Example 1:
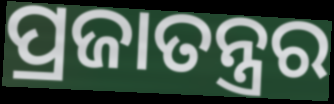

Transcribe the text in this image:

ପ୍ରଜାତନ୍ତ୍ରର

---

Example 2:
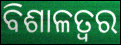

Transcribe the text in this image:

ବିଶାଳତ୍ୱର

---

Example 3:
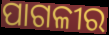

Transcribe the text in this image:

ପାଗଳୀର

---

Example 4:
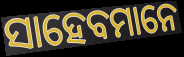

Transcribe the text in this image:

ସାହେବମାନେ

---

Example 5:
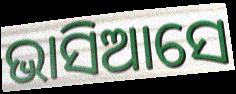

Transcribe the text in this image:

ଭାସିଆସେ